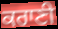
ਕਰਾਣੀ